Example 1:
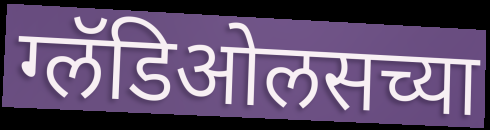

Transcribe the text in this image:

ग्लॅडिओलसच्या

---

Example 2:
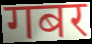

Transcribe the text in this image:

गबर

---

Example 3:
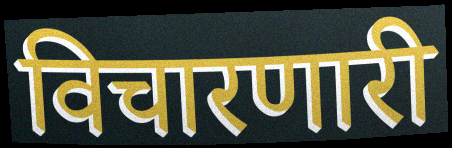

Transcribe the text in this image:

विचारणारी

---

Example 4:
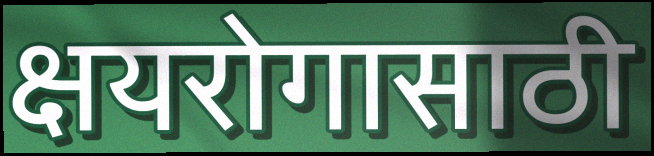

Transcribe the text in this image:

क्षयरोगासाठी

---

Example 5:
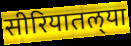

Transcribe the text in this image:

सीरियातल्या